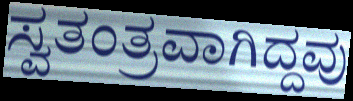
ಸ್ವತಂತ್ರವಾಗಿದ್ದವು